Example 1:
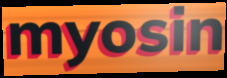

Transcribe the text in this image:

myosin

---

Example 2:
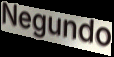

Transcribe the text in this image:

Negundo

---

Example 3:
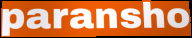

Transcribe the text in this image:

paransho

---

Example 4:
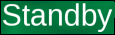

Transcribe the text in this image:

Standby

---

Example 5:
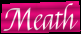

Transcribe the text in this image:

Meath